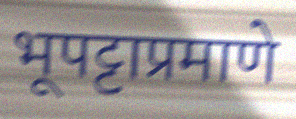
भूपट्टाप्रमाणे